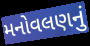
મનોવલણનું